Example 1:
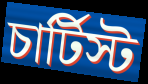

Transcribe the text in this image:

চার্টিস্ট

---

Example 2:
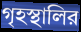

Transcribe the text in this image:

গৃহস্থালির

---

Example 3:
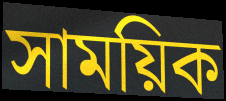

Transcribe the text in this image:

সাময়িক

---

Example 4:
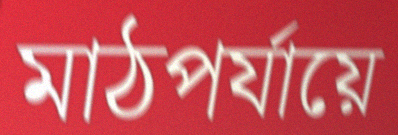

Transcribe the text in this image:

মাঠপর্যায়ে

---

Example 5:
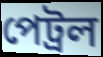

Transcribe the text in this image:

পেট্রল